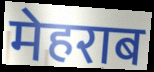
मेहराब